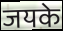
जयके